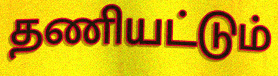
தணியட்டும்